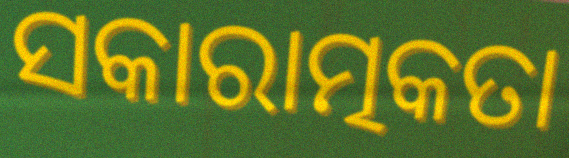
ସକାରାତ୍ମକତା